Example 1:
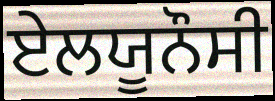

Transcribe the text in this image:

ਏਲਯੂਨੌਸੀ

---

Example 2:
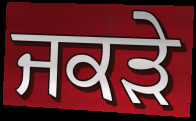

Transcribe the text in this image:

ਜਕੜੇ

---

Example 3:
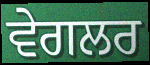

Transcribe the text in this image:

ਵੇਗਲਰ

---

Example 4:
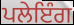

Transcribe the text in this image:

ਪਲੇਇੰਗ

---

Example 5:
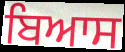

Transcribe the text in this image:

ਬਿਆਸ